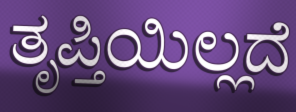
ತೃಪ್ತಿಯಿಲ್ಲದೆ